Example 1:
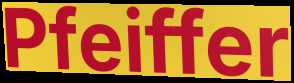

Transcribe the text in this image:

Pfeiffer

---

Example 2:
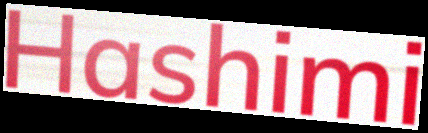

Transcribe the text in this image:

Hashimi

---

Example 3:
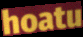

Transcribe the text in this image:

hoatu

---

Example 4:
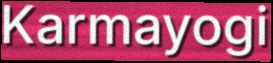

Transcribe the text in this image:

Karmayogi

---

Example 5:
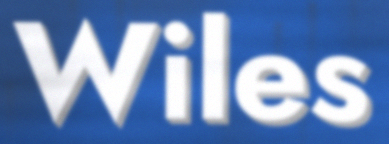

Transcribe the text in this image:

Wiles